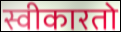
स्वीकारतो